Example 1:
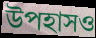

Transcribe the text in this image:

উপহাসও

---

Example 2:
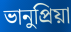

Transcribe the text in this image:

ভানুপ্রিয়া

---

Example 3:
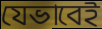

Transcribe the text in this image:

যেভাবেই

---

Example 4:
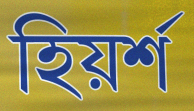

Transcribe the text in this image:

হিয়র্শ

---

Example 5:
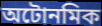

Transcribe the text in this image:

অটোনমিক